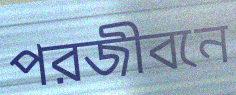
পরজীবনে